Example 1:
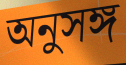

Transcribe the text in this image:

অনুসঙ্গ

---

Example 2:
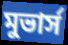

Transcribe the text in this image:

মুভার্স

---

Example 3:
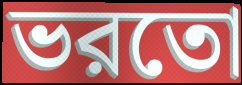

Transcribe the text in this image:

ভরতো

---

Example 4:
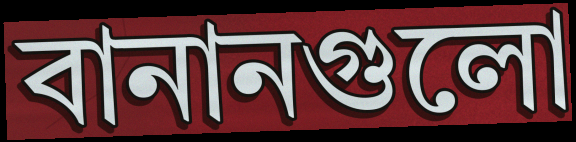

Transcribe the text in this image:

বানানগুলো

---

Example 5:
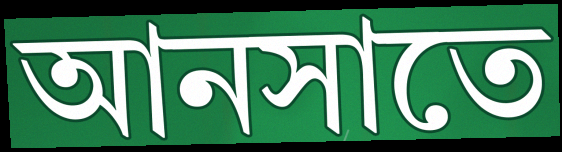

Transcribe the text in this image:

আনসাতে